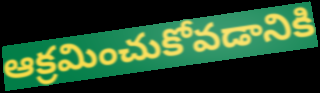
ఆక్రమించుకోవడానికి